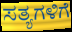
ಸತ್ಯಗಳಿಗೆ